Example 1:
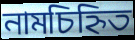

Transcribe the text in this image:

নামচিহ্নিত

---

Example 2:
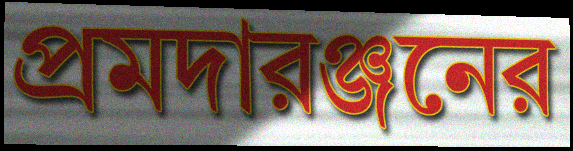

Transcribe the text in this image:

প্রমদারঞ্জনের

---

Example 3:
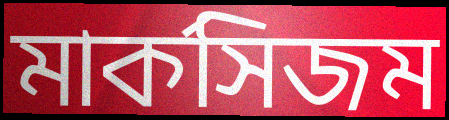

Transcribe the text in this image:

মার্কসিজম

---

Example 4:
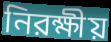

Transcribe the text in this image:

নিরক্ষীয়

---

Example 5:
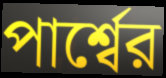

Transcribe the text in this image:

পার্শ্বের